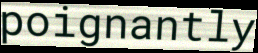
poignantly